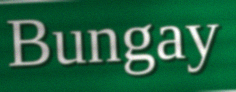
Bungay